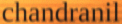
chandranil